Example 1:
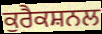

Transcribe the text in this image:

ਕੁਰੈਕਸ਼ਨਲ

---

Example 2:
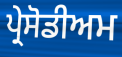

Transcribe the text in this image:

ਪ੍ਰੇਸੋਡੀਅਮ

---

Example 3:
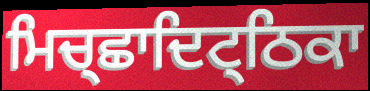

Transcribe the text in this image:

ਮਿਚ੍ਛਾਦਿਟ੍ਠਿਕਾ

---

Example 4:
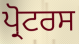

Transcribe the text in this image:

ਪ੍ਰੋਟਰਸ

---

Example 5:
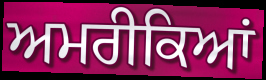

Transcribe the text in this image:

ਅਮਰੀਕਿਆਂ